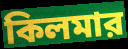
কিলমার